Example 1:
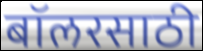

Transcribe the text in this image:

बॉलरसाठी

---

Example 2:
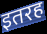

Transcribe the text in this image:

इतरह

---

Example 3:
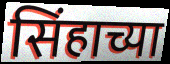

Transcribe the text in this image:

सिंहाच्या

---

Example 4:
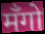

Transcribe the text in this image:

मँगो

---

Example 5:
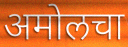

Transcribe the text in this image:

अमोलचा